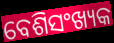
ବେଶିସଂଖ୍ୟକ